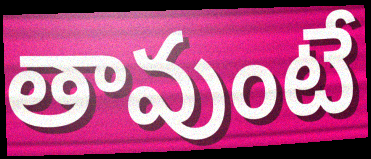
తావుంటే